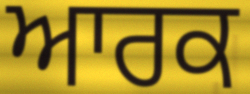
ਆਰਕ